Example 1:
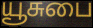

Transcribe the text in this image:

யூசுபை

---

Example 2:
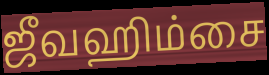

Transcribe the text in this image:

ஜீவஹிம்சை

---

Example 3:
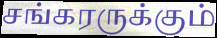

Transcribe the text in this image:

சங்கரருக்கும்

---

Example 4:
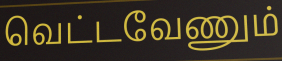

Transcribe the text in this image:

வெட்டவேணும்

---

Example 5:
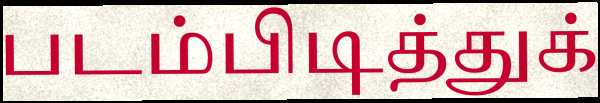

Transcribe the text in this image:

படம்பிடித்துக்